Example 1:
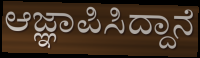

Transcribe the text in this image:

ಆಜ್ಞಾಪಿಸಿದ್ದಾನೆ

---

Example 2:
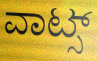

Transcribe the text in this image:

ವಾಟ್ಸ್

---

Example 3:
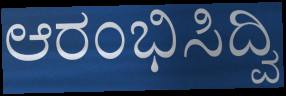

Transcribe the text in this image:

ಆರಂಭಿಸಿದ್ವಿ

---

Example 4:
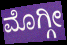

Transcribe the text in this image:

ಮೊಗ್ಗೀ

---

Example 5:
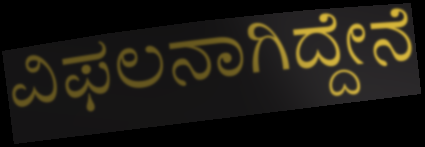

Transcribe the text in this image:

ವಿಫಲನಾಗಿದ್ದೇನೆ